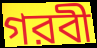
গরবী